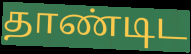
தாண்டிட